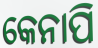
କେନାପି